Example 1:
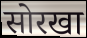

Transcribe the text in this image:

सोरखा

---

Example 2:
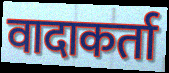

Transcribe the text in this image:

वादाकर्ता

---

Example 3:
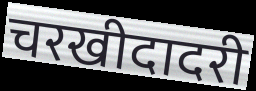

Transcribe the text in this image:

चरखीदादरी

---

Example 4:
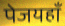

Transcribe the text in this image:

पेजयहाँ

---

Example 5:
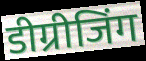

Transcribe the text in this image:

डीग्रीजिंग